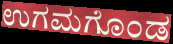
ಉಗಮಗೊಂಡ